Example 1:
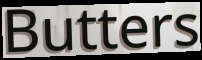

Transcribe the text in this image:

Butters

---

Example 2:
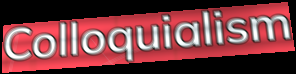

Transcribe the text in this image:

Colloquialism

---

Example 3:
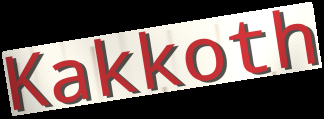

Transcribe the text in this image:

Kakkoth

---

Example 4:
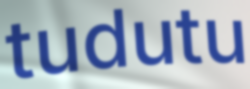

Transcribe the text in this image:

tudutu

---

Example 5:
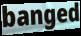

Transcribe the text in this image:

banged